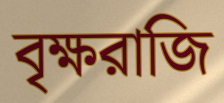
বৃক্ষরাজি